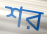
শর